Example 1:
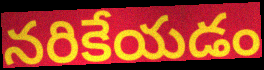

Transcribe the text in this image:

నరికేయడం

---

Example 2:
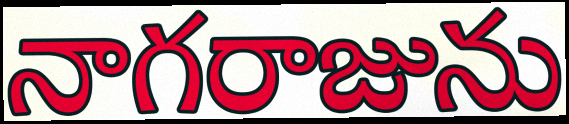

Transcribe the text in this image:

నాగరాజును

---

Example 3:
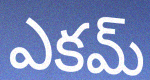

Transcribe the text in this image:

ఎకమ్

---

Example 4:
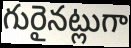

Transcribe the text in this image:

గురైనట్లుగా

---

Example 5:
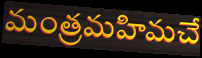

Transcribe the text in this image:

మంత్రమహిమచే